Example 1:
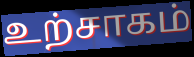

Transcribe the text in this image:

உற்சாகம்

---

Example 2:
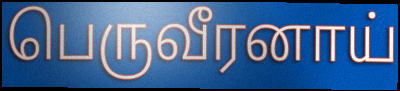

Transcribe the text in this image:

பெருவீரனாய்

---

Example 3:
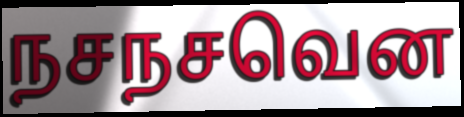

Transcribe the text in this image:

நசநசவென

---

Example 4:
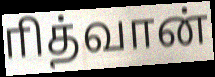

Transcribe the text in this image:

ரித்வான்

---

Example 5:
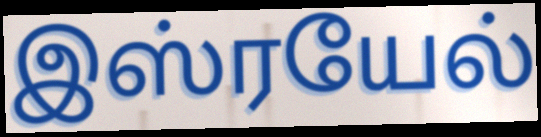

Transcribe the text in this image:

இஸ்ரயேல்